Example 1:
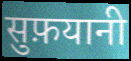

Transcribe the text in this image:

सुफ़यानी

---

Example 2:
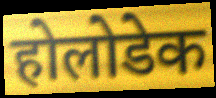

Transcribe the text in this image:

होलोडेक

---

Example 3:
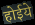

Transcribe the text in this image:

होईये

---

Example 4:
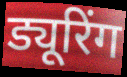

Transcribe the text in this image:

ड्यूरिंग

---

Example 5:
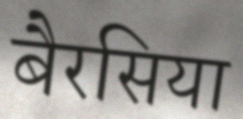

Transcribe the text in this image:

बैरसिया